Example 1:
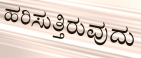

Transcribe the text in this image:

ಹರಿಸುತ್ತಿರುವುದು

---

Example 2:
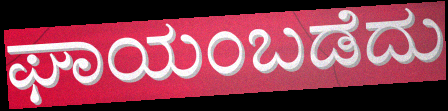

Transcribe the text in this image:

ಘಾಯಂಬಡೆದು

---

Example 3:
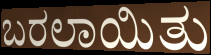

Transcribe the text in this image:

ಬರಲಾಯಿತು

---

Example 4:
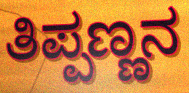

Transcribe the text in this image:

ತಿಪ್ಪಣ್ಣನ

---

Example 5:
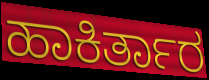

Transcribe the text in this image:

ಹಾಕಿರ್ತಾರ